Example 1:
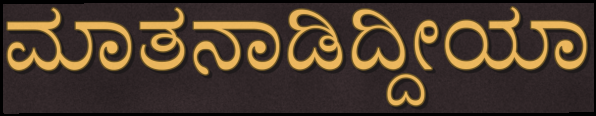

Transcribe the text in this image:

ಮಾತನಾಡಿದ್ದೀಯಾ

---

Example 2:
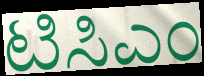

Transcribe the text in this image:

ಟಿಸಿಎಂ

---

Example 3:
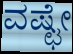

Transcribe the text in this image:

ವಷ್ಟೇ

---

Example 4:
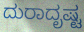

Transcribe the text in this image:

ದುರಾದೃಷ್ಟ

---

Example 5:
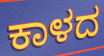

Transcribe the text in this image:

ಕಾಳದ